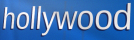
hollywood